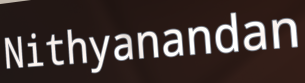
Nithyanandan